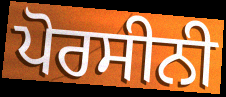
ਪੋਰਸੀਨੀ